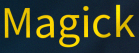
Magick